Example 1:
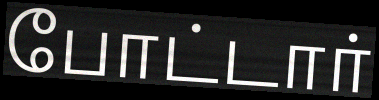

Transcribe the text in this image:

போட்டார்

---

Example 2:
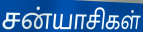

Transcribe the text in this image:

சன்யாசிகள்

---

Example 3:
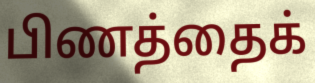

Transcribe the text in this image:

பிணத்தைக்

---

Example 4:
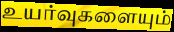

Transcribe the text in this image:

உயர்வுகளையும்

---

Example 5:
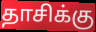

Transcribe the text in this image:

தாசிக்கு